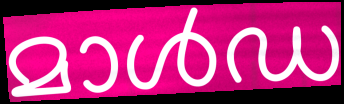
മാൾഡ